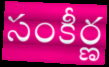
సంకీర్ణ